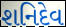
શનિદેવ